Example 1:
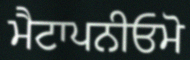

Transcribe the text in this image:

ਮੈਟਾਪਨੀਓਮੋ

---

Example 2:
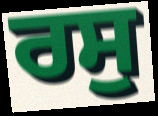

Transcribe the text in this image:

ਰਸੁ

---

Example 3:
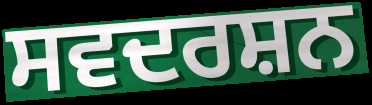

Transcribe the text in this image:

ਸਵਦਰਸ਼ਨ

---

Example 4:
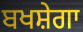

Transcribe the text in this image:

ਬਖਸ਼ੇਗਾ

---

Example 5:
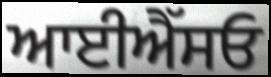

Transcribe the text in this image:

ਆਈਐੱਸਓ